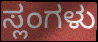
ಸ್ಲಂಗಳು